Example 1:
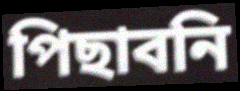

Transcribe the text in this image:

পিছাবনি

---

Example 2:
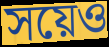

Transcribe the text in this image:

সয়েও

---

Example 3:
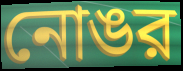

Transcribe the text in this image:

নোঙর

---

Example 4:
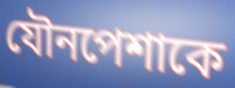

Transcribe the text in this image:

যৌনপেশাকে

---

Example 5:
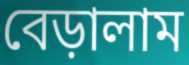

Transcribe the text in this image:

বেড়ালাম